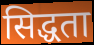
सिद्धता